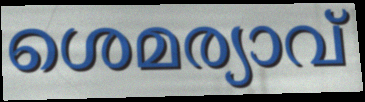
ശെമര്യാവ്